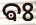
ଵଃ